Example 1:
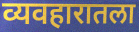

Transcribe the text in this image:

व्यवहारातला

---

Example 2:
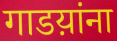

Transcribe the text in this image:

गाडय़ांना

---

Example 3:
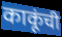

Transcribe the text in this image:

काकूंची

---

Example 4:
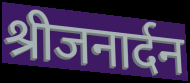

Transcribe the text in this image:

श्रीजनार्दन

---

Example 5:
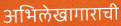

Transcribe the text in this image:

अभिलेखागाराची